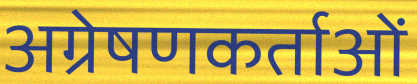
अग्रेषणकर्ताओं